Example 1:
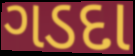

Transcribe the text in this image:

ગડદા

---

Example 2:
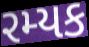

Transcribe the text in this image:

રમ્યક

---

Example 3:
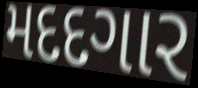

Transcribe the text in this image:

મદદગાર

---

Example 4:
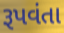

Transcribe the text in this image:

રૂપવંતા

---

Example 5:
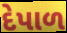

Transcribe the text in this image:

દેપાળ